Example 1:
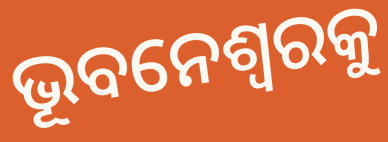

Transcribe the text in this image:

ଭୂବନେଶ୍ୱରକୁ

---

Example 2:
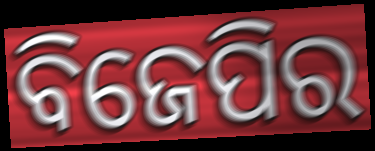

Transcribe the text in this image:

ବିଜେପିର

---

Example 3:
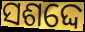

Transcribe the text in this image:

ସଶଦ୍ଦେ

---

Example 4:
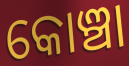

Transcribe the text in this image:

କୋଞ୍ଚା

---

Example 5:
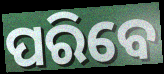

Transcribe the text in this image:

ପରିବେ